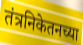
तंत्रनिकेतनच्या